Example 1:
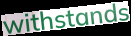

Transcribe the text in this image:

withstands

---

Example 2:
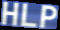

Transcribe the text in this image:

HLP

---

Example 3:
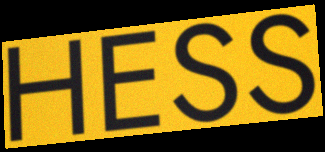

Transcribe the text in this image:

HESS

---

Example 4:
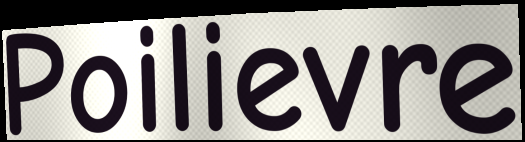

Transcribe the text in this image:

Poilievre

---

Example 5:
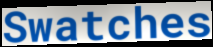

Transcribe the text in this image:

Swatches